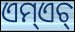
ଏମ୍ଏଚ୍